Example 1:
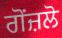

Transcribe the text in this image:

ਗੋਂਜ਼ਲੋ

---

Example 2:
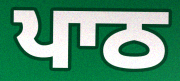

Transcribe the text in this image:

ਪਾਠ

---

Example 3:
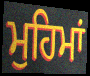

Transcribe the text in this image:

ਮੁਹਿਮਾਂ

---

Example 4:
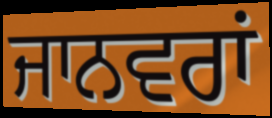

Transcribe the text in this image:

ਜਾਨਵਰਾਂ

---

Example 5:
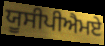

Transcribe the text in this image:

ਯੂਸੀਪੀਐਮਏ